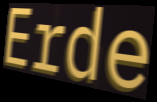
Erde